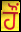
ਹੌਂ